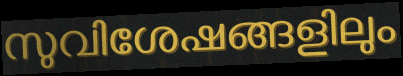
സുവിശേഷങ്ങളിലും